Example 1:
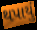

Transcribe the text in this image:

થપાયું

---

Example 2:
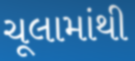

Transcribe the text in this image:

ચૂલામાંથી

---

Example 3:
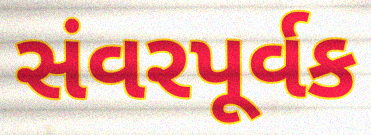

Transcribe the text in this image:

સંવરપૂર્વક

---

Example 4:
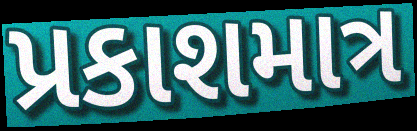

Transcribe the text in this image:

પ્રકાશમાત્ર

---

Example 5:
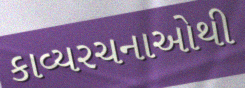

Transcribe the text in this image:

કાવ્યરચનાઓથી